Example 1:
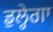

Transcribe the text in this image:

ਡੁਲ੍ਹੇਗਾ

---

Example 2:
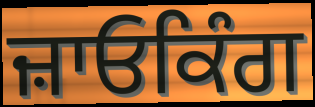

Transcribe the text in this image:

ਜ਼ਾਓਕਿੰਗ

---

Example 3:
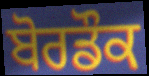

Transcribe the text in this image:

ਬੋਰਡੌਕ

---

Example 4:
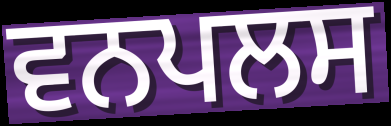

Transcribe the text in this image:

ਵਨਪਲਸ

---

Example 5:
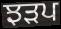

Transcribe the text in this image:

ਝੜਪ